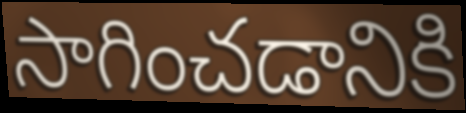
సాగించడానికి